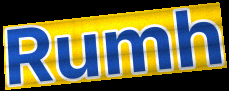
Rumh